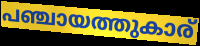
പഞ്ചായത്തുകാര്